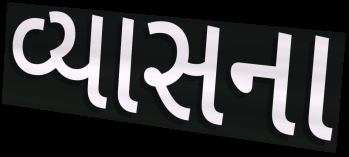
વ્યાસના